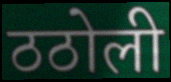
ठठोली